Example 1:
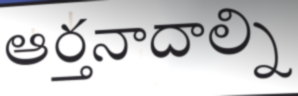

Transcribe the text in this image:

ఆర్తనాదాల్ని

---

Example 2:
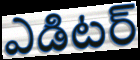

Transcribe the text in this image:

ఎడిటర్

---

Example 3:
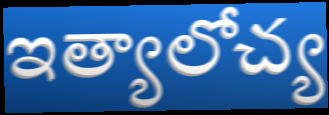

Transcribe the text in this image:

ఇత్యాలోచ్య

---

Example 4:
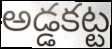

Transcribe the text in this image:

అడ్డకట్ట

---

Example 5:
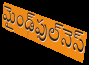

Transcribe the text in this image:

మైండ్‌ఫుల్‌నెస్